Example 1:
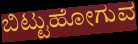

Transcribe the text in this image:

ಬಿಟ್ಟುಹೋಗುವ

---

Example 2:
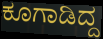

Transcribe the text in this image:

ಕೂಗಾಡಿದ್ದ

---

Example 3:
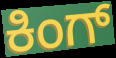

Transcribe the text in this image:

ಕಿಂಗ್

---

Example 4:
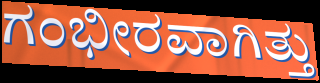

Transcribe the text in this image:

ಗಂಭೀರವಾಗಿತ್ತು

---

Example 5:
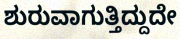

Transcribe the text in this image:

ಶುರುವಾಗುತ್ತಿದ್ದುದೇ